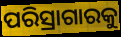
ପରିସ୍ରାଗାରକୁ